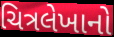
ચિત્રલેખાનો